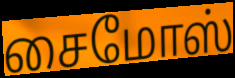
சைமோஸ்